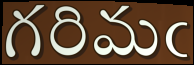
గరిమఁ